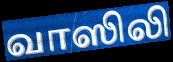
வாஸிலி